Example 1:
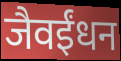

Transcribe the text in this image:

जैवईंधन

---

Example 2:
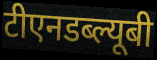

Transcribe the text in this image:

टीएनडब्ल्यूबी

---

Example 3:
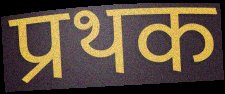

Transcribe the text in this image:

प्रथक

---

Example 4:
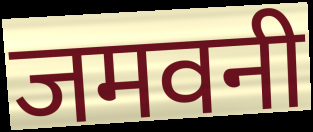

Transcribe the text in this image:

जमवनी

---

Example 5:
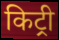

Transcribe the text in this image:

किट्री